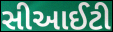
સીઆઈટી